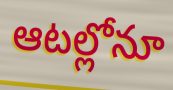
ఆటల్లోనూ